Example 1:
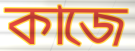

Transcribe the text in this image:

কাজে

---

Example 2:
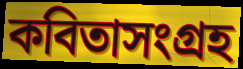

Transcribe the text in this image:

কবিতাসংগ্রহ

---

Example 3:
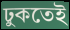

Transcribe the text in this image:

ঢুকতেই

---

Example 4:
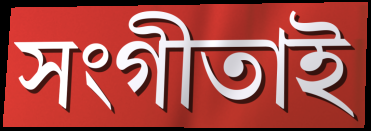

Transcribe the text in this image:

সংগীতাই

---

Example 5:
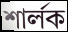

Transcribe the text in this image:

শার্লক